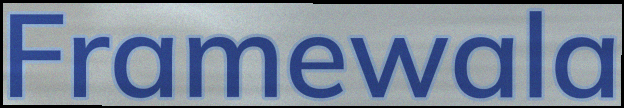
Framewala